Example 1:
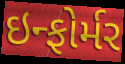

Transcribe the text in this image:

ઇન્ફોર્મર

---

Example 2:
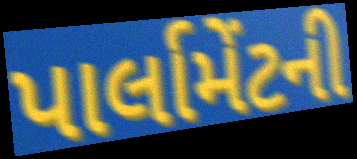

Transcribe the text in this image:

પાર્લામેંટની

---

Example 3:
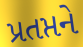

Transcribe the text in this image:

પ્રતપ્તને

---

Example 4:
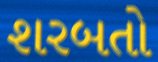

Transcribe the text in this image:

શરબતો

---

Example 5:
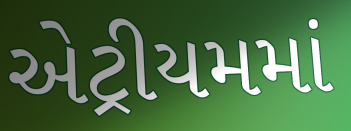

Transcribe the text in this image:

એટ્રીયમમાં